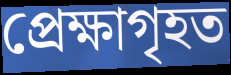
প্ৰেক্ষাগৃহত